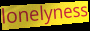
lonelyness